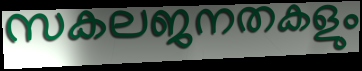
സകലജനതകളും